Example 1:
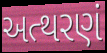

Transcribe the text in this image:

અત્થરણં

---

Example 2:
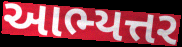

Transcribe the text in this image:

આભ્યત્તર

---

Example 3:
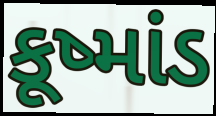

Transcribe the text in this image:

કૂષ્માંડ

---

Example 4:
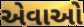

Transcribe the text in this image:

એવાઓ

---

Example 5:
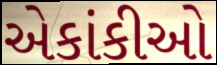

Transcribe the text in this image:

એકાંકીઓ